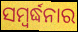
ସମ୍ବର୍ଦ୍ଧନାର